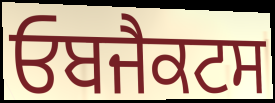
ਓਬਜੈਕਟਸ